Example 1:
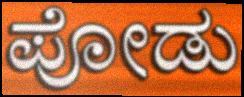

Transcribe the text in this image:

ಪೋಡು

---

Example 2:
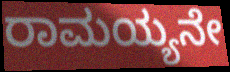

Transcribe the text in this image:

ರಾಮಯ್ಯನೇ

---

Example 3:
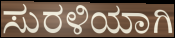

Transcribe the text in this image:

ಸುರಳಿಯಾಗಿ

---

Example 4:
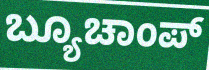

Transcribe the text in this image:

ಬ್ಯೂಚಾಂಪ್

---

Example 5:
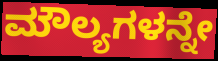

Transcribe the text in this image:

ಮೌಲ್ಯಗಳನ್ನೇ